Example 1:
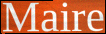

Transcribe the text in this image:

Maire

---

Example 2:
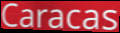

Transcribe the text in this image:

Caracas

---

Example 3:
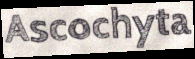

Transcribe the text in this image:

Ascochyta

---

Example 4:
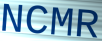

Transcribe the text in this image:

NCMR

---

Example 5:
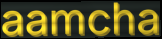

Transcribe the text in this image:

aamcha